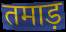
तमाड़